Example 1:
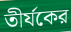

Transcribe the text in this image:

তীর্যকের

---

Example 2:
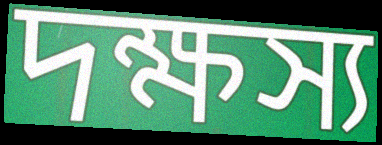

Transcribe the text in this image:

দক্ষস্য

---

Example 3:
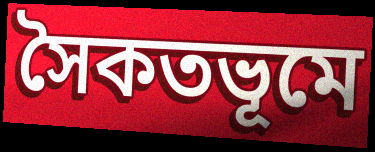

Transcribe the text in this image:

সৈকতভূমে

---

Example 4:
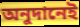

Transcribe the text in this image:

অনুদানেই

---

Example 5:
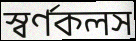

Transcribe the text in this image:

স্বর্ণকলস